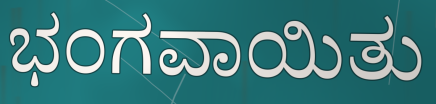
ಭಂಗವಾಯಿತು